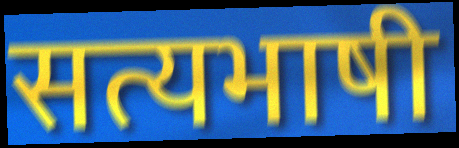
सत्यभाषी